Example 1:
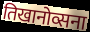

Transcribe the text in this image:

तिखानोव्सना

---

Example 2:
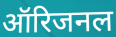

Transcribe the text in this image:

ऑरिजनल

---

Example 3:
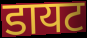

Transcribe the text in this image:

डायट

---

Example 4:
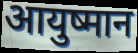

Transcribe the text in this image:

आयुष्मान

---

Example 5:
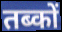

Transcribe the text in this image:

तब्कों